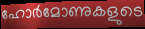
ഹോർമോണുകളുടെ